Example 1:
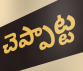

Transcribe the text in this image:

చెప్పాట్ట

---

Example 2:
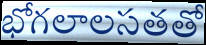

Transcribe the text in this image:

భోగలాలసతతో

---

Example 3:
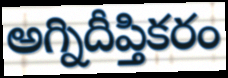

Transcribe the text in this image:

అగ్నిదీప్తికరం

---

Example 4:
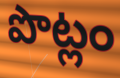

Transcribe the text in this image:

పొట్లం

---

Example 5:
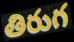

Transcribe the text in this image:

తిరుగ